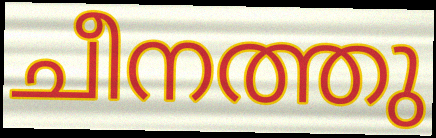
ചീനത്തു